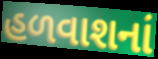
હળવાશનાં